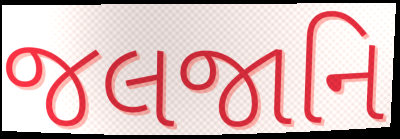
જલજાનિ